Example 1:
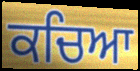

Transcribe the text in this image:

ਕਚਿਆ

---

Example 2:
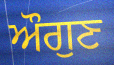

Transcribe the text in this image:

ਔਗੁਣ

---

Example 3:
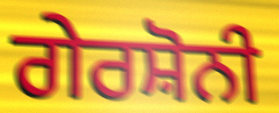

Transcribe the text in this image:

ਗੇਰਸ਼ੋਨੀ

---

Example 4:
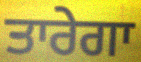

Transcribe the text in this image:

ਤਾਰੇਗਾ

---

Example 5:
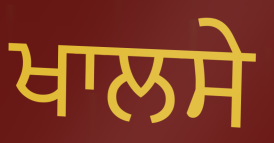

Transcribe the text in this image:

ਖਾਲਸੇ